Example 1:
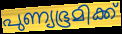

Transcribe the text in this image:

പുണ്യഭൂമിക്ക്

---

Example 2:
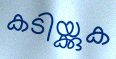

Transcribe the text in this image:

കടിയ്ക്കുക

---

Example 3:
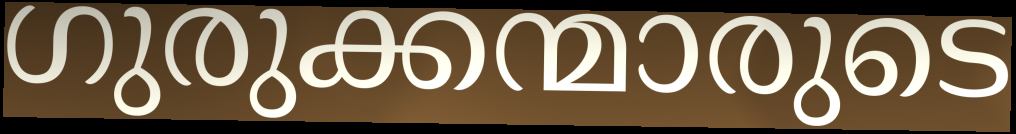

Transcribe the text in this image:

ഗുരുക്കന്മാരുടെ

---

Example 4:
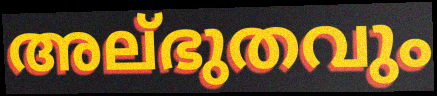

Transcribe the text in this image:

അല്ഭുതവും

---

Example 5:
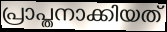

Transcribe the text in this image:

പ്രാപ്തനാക്കിയത്